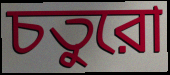
চতুরো